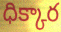
ధిక్కార